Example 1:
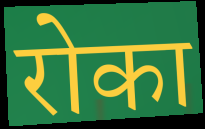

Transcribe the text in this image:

रोका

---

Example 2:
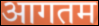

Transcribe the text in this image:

आगतम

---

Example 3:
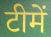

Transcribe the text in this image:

टीमें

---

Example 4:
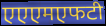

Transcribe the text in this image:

एएएमएफटी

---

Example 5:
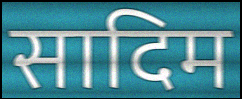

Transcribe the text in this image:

सादिम